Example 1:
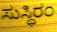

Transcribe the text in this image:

ಸುಸ್ಥಿರಂ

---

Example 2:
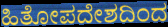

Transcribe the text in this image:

ಹಿತೋಪದೇಶದಿಂದ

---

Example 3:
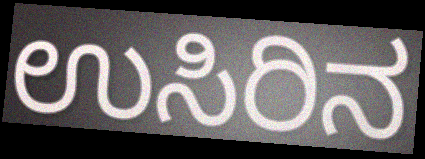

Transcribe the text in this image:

ಉಸಿರಿನ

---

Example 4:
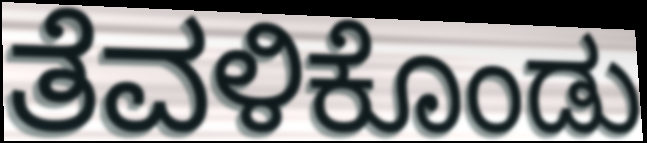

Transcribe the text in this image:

ತೆವಳಿಕೊಂಡು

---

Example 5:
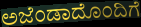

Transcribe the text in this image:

ಅಜೆಂಡಾದೊಂದಿಗೆ